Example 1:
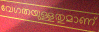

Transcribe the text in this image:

വേഗതയുള്ളതുമാണ്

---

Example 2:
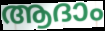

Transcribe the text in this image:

ആദാം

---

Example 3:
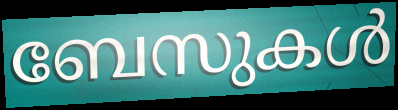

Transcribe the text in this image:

ബേസുകൾ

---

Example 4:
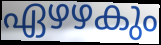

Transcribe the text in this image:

ഏഴഴകും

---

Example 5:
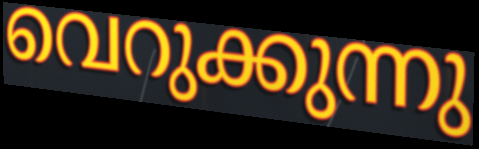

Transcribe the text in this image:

വെറുക്കുന്നു